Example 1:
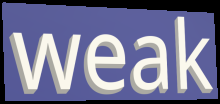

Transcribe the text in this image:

weak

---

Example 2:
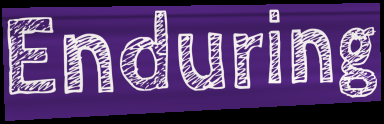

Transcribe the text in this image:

Enduring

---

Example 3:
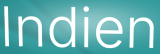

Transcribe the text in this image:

Indien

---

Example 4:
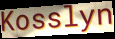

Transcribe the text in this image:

Kosslyn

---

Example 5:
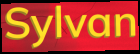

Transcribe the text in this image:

Sylvan